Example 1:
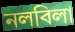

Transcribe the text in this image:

নলবিলা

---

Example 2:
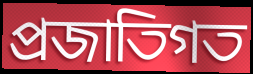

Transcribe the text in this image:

প্রজাতিগত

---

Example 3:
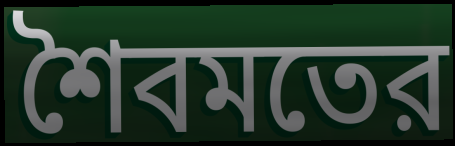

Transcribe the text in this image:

শৈবমতের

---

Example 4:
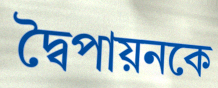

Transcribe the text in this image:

দ্বৈপায়নকে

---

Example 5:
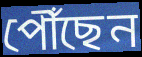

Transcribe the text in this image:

পৌঁছেন